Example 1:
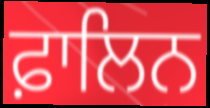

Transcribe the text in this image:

ਫ਼ਾਲਿਨ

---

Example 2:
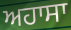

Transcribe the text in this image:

ਅਹਾਸਾ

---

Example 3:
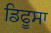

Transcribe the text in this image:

ਡਿਫੂਸਾ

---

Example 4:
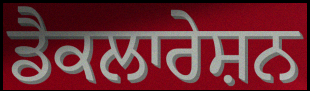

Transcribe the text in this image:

ਡੈਕਲਾਰੇਸ਼ਨ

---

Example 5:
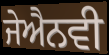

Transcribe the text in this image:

ਜੇਐਨਵੀ